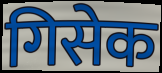
गिसेक